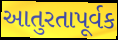
આતુરતાપૂર્વક